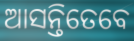
ଆସନ୍ତିତେବେ